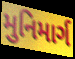
મુનિમાર્ગ